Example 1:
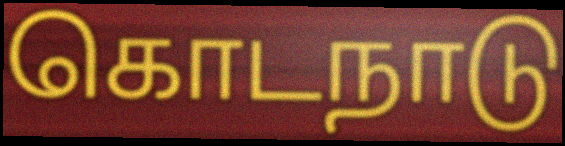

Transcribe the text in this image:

கொடநாடு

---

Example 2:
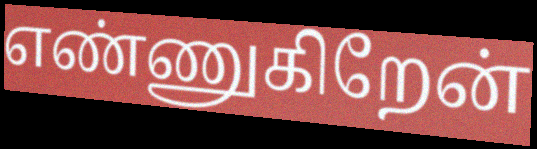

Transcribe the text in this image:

எண்ணுகிறேன்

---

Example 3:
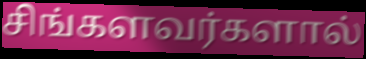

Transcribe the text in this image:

சிங்களவர்களால்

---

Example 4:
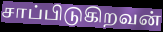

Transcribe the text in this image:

சாப்பிடுகிறவன்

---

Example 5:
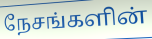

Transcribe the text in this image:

நேசங்களின்